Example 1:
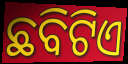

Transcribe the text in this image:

ଛବିଟିଏ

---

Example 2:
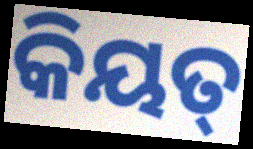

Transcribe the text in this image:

କିୟତ୍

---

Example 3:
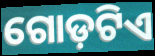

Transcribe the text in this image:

ଗୋଡ଼ଟିଏ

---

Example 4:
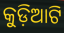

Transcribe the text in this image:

କୁଡ଼ିଆଟି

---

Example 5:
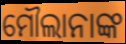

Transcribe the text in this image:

ମୌଲାନାଙ୍କ